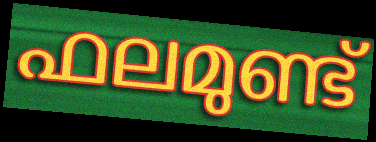
ഫലമുണ്ട്